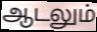
ஆடலும்